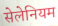
सेलेनियम